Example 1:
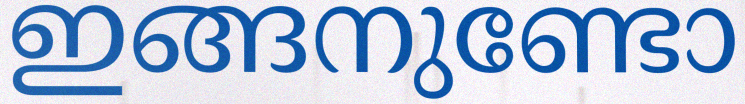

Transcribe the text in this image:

ഇങ്ങനുണ്ടോ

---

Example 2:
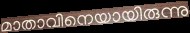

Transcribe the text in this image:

മാതാവിനെയായിരുന്നു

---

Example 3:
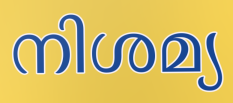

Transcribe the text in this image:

നിശമ്യ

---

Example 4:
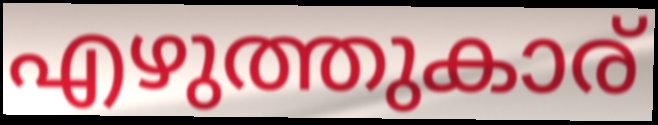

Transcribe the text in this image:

എഴുത്തുകാര്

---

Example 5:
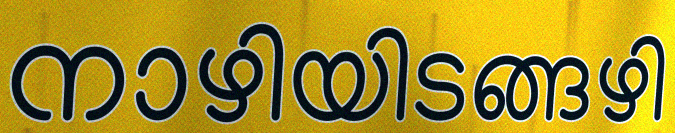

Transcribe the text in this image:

നാഴിയിടങ്ങഴി